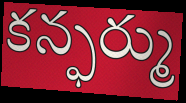
కన్ఫర్ము